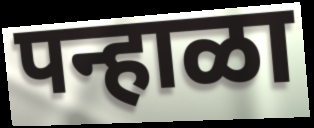
पन्हाळा